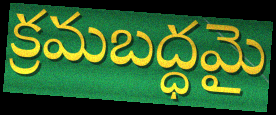
క్రమబద్ధమై